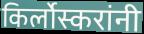
किर्लोस्करांनी